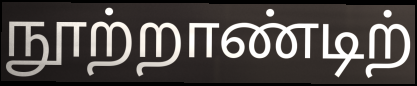
நூற்றாண்டிற்